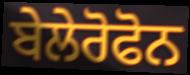
ਬੇਲੇਰੋਫੋਨ